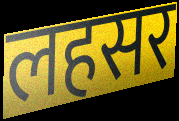
लहसर